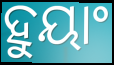
ହୁୟାଂ